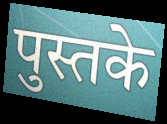
पुस्तके